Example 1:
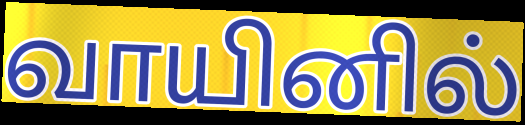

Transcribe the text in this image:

வாயினில்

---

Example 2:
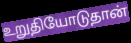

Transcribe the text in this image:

உறுதியோடுதான்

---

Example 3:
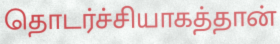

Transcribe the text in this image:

தொடர்ச்சியாகத்தான்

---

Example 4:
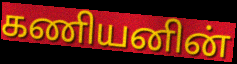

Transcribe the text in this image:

கணியனின்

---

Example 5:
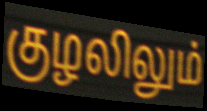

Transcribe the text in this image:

குழலிலும்